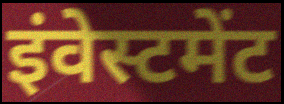
इंवेस्टमेंट